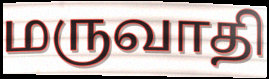
மருவாதி